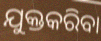
ଯୁକ୍ତକରିବା